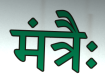
मंत्रैः